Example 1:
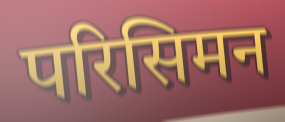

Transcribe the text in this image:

परिसिमन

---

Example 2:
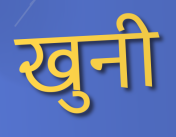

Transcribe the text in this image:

खुनी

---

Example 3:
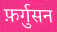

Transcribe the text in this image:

फ़र्गुसन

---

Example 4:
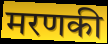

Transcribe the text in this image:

मरणकी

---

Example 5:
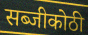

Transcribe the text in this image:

सब्जीकोठी